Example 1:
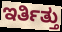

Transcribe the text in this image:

ಇರ್ತಿತ್ತು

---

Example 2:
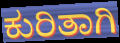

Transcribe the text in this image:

ಕುರಿತಾಗಿ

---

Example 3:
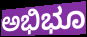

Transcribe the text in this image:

ಅಭಿಭೂ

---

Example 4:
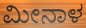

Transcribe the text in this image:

ಮೀನಾಳ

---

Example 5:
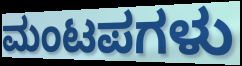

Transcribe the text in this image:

ಮಂಟಪಗಳು